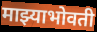
माझ्याभोवती